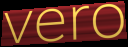
vero